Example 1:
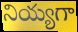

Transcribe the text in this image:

నియ్యగా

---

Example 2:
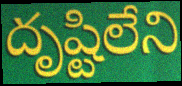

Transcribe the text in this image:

దృష్టిలేని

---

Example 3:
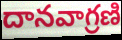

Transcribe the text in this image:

దానవాగ్రణి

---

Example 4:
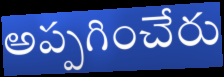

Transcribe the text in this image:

అప్పగించేరు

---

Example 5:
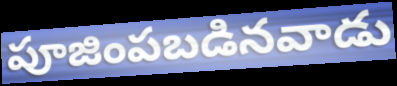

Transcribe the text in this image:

పూజింపబడినవాడు